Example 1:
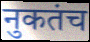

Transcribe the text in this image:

नुकतंच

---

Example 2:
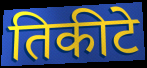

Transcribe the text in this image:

तिकीटे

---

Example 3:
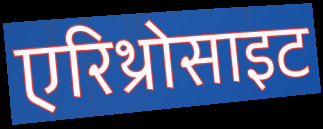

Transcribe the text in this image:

एरिथ्रोसाइट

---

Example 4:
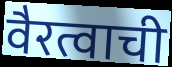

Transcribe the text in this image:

वैरत्वाची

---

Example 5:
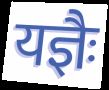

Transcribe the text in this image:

यज्ञैः